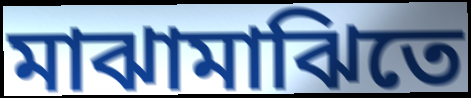
মাঝামাঝিতে